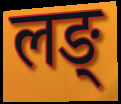
लङ्